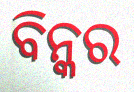
ବିନ୍କର